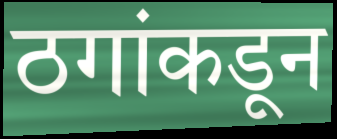
ठगांकडून